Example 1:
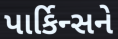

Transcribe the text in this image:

પાર્કિન્સને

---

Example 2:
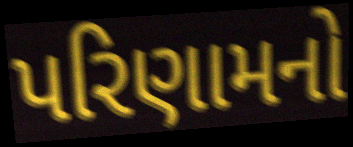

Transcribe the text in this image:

પરિણામનો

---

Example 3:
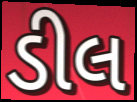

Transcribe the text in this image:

ડીલ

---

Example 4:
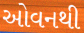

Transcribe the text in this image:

ઓવનથી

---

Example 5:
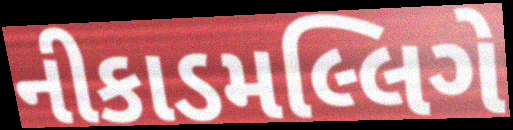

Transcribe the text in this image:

નીકાડમલ્લિગે